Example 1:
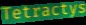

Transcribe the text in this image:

Tetractys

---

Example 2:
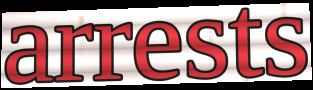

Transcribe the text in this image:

arrests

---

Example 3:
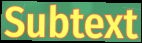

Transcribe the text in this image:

Subtext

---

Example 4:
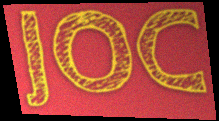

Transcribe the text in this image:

JOC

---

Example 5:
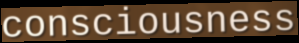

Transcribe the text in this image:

consciousness